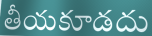
తీయకూడదు